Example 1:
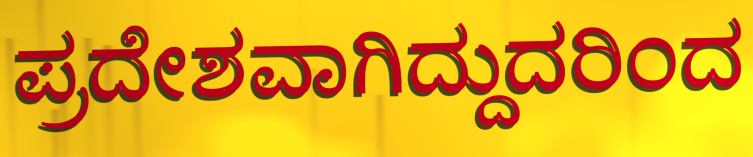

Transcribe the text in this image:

ಪ್ರದೇಶವಾಗಿದ್ದುದರಿಂದ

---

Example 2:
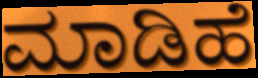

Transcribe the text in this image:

ಮಾಡಿಹೆ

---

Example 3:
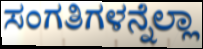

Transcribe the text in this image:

ಸಂಗತಿಗಳನ್ನೆಲ್ಲಾ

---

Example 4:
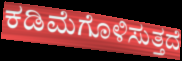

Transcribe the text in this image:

ಕಡಿಮೆಗೊಳಿಸುತ್ತದೆ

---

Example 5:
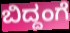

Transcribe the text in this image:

ಬಿದ್ದಂಗೆ